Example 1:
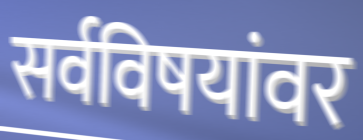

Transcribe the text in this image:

सर्वविषयांवर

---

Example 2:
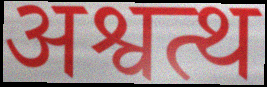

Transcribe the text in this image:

अश्वत्थ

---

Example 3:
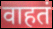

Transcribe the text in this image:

वाहतं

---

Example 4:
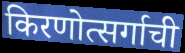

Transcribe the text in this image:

किरणोत्सर्गाची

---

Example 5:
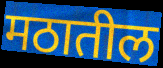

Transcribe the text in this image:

मठातील